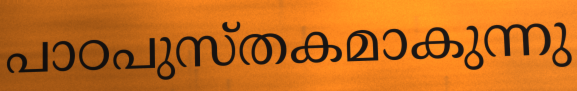
പാഠപുസ്തകമാകുന്നു